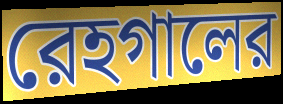
রেহগালের